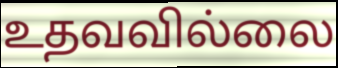
உதவவில்லை